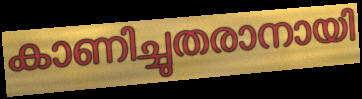
കാണിച്ചുതരാനായി